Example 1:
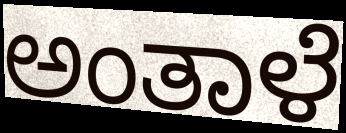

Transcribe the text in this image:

ಅಂತಾಳೆ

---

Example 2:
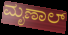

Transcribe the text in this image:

ಮೃಣಾಲ್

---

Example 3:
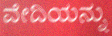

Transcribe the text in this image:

ವೇದಿಯನ್ನು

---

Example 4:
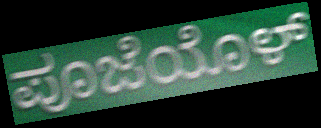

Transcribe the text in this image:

ಪೂಜೆಯೊಳ್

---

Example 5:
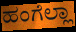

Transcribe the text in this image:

ಹಂಗೆಲ್ಲಾ